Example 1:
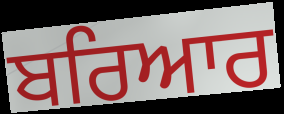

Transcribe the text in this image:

ਬਰਿਆਰ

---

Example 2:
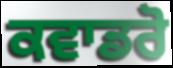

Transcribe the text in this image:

ਕਵਾਡਰੋ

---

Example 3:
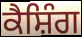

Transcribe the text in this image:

ਕੈਸ਼ਿੰਗ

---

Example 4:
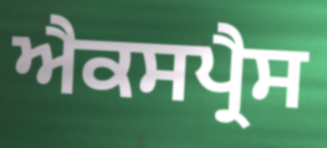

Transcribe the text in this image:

ਐਕਸਪ੍ਰੈਸ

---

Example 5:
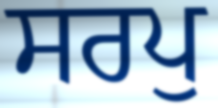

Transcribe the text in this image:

ਸਰਪੁ